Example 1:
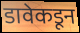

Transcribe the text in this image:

डावेकडून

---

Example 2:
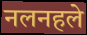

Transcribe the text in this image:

नलनहले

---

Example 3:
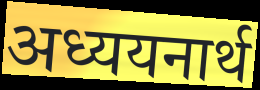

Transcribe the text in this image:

अध्ययनार्थ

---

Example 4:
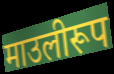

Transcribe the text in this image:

माउलीरूप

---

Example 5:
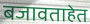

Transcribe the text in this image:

बजावताहेत